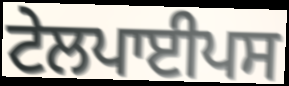
ਟੇਲਪਾਈਪਸ